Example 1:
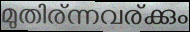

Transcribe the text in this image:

മുതിര്ന്നവര്ക്കും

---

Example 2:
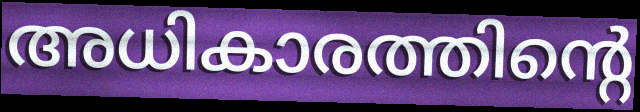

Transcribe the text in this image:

അധികാരത്തിന്റെ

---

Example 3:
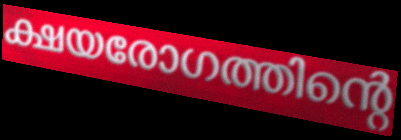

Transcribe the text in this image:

ക്ഷയരോഗത്തിന്റെ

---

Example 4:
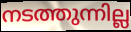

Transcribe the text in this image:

നടത്തുന്നില്ല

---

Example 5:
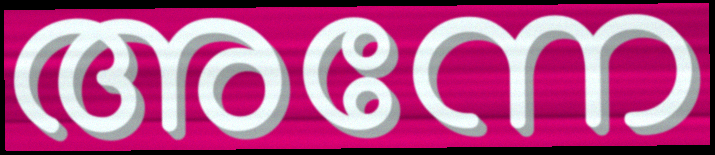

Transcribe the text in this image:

അന്നേ